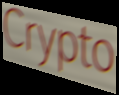
Crypto